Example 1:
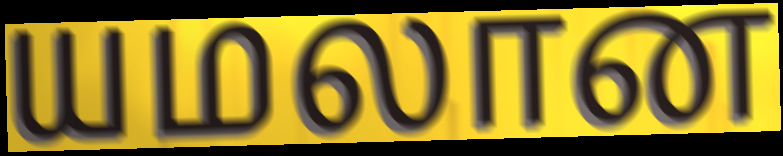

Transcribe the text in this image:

யமலான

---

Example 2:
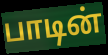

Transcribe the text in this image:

பாடின்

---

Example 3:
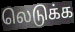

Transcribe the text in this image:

லெடுக்க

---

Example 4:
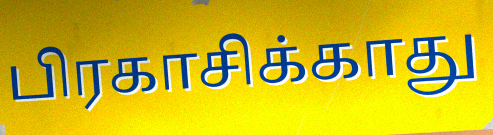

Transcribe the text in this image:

பிரகாசிக்காது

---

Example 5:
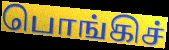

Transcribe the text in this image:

பொங்கிச்